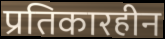
प्रतिकारहीन